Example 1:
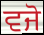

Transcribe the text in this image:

ਵਜੋ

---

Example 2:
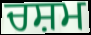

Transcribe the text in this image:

ਚਸ਼ਮ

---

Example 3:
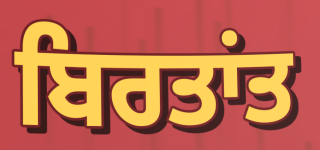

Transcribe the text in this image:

ਬਿਰਤਾਂਤ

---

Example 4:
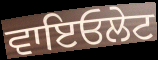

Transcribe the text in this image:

ਵਾਇਓਲੇਟ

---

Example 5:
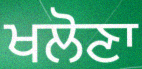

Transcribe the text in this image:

ਖਲੋਣਾ